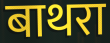
बाथरा